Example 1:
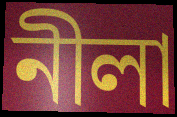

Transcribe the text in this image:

নীলা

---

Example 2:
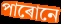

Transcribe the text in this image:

পাৰোনে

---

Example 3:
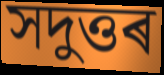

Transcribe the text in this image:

সদুত্তৰ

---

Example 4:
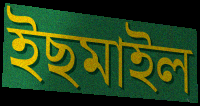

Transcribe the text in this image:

ইছমাইল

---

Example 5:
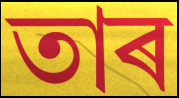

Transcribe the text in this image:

তাৰ